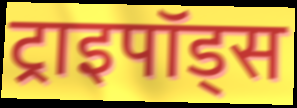
ट्राइपॉड्स